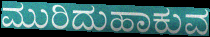
ಮುರಿದುಹಾಕುವ